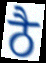
ठै